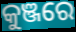
କୁଞ୍ଜରେ